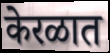
केरळात